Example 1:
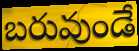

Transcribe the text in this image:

బరువుండే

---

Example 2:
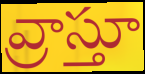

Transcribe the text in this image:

వ్రాస్తూ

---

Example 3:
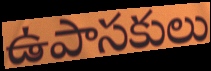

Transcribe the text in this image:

ఉపాసకులు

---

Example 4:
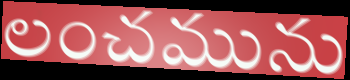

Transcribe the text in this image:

లంచమును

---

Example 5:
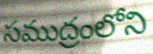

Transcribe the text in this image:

సముద్రంలోని